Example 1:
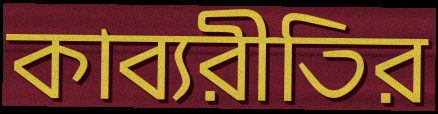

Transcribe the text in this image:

কাব্যরীতির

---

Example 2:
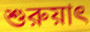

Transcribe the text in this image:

শুরুয়াৎ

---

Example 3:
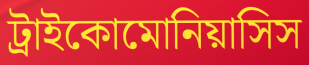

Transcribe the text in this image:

ট্রাইকোমোনিয়াসিস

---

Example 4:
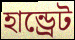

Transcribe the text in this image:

হান্ড্রেট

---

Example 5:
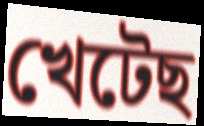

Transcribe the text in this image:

খেটেছ